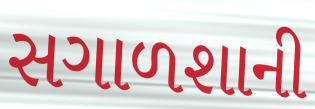
સગાળશાની